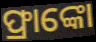
ଫ୍ରାଙ୍କୋ